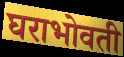
घराभोवती